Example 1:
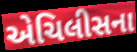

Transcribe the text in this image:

એચિલીસના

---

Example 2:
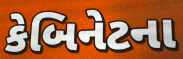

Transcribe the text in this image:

કેબિનેટના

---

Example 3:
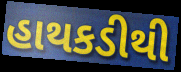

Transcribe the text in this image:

હાથકડીથી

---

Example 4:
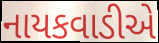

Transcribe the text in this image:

નાયકવાડીએ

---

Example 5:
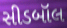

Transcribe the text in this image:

સીડબૉલ